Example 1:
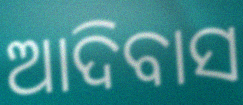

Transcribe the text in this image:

ଆଦିବାସ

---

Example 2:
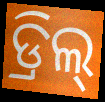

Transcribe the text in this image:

ଡ୍ରିଲ୍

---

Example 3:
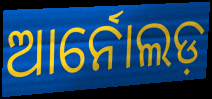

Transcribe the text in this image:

ଆର୍ନୋଲଡ଼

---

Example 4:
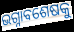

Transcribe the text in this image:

ଭଗ୍ନାବଶେଷକୁ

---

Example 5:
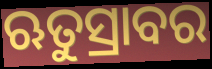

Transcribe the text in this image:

ଋତୁସ୍ରାବର